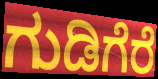
ಗುಡಿಗೆರೆ